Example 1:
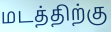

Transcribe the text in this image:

மடத்திற்கு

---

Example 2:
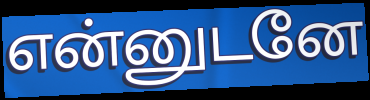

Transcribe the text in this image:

என்னுடனே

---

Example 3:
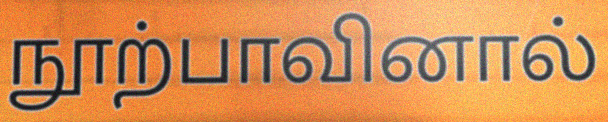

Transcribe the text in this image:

நூற்பாவினால்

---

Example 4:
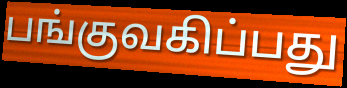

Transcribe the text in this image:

பங்குவகிப்பது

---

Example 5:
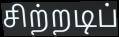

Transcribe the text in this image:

சிற்றடிப்